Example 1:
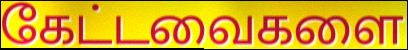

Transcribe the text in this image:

கேட்டவைகளை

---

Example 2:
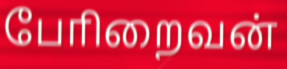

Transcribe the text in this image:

பேரிறைவன்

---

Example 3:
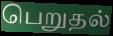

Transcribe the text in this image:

பெறுதல்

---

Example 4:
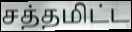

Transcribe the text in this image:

சத்தமிட்ட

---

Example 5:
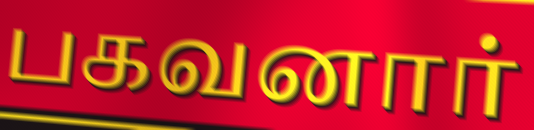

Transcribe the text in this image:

பகவனார்